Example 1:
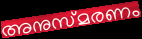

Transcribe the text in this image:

അനുസ്മരണം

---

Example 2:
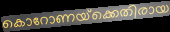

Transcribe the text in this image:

കൊറോണയ്‌ക്കെതിരായ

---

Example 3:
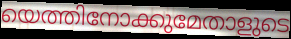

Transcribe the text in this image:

യെത്തിനോക്കുമേതാളുടെ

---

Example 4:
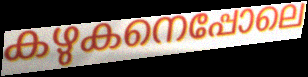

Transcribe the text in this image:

കഴുകനെപ്പോലെ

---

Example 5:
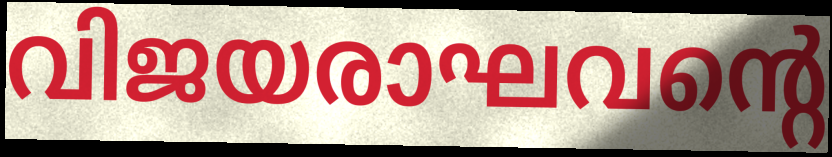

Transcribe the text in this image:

വിജയരാഘവന്റെ